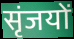
सृंजयों